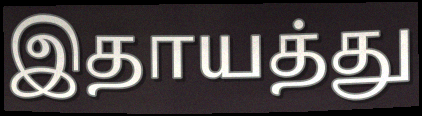
இதாயத்து